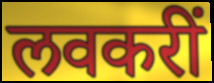
लवकरीं